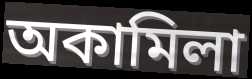
অকামিলা